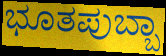
ಭೂತಪುಬ್ಬಾ